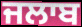
ਜਲਾਬ